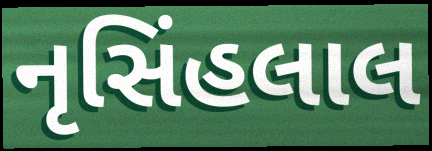
નૃસિંહલાલ